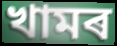
খামৰ